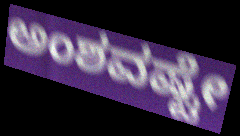
ಅಂಶವಷ್ಟೇ